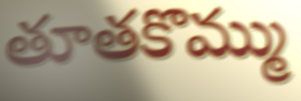
తూతకొమ్ము